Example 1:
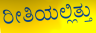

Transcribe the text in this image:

ರೀತಿಯಲ್ಲಿತ್ತು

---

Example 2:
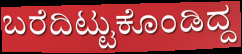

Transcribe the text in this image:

ಬರೆದಿಟ್ಟುಕೊಂಡಿದ್ದ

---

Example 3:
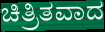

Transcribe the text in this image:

ಚಿತ್ರಿತವಾದ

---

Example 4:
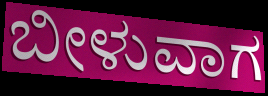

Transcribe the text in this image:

ಬೀಳುವಾಗ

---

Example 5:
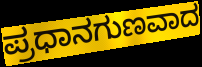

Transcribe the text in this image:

ಪ್ರಧಾನಗುಣವಾದ